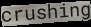
crushing